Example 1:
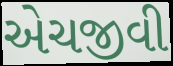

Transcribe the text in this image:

એચજીવી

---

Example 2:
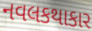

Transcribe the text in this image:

નવલકથાકાર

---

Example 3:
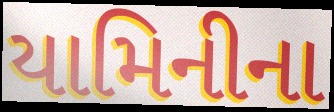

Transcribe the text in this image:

યામિનીના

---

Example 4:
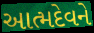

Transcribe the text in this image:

આત્મદેવને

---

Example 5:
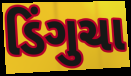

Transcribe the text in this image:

ડિંગુચા